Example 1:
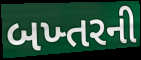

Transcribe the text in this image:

બખ્તરની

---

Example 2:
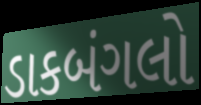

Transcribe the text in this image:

ડાકબંગલો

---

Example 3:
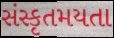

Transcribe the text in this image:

સંસ્કૃતમયતા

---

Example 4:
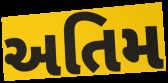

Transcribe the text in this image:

અતિમ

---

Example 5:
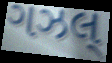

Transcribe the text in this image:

ગઝલ્